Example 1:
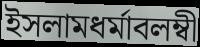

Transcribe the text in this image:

ইসলামধর্মাবলম্বী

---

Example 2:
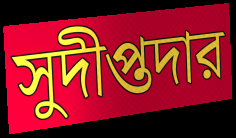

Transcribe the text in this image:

সুদীপ্তদার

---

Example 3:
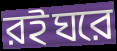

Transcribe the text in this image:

রইঘরে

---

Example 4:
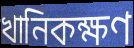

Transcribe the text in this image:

খানিকক্ষণ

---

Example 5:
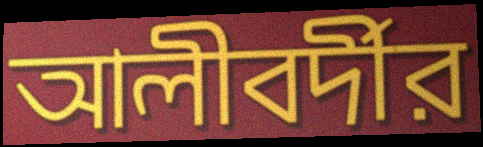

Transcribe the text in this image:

আলীবর্দীর